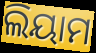
ଲିୟାମ